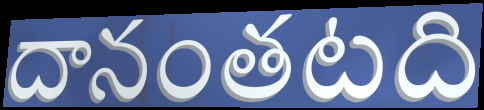
దానంతటది